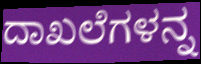
ದಾಖಲೆಗಳನ್ನ